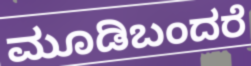
ಮೂಡಿಬಂದರೆ